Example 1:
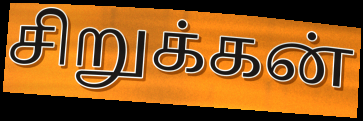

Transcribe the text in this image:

சிறுக்கன்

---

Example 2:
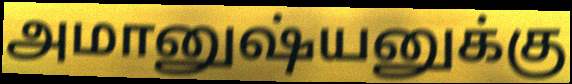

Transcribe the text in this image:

அமானுஷ்யனுக்கு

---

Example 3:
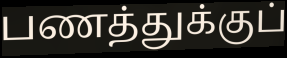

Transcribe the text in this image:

பணத்துக்குப்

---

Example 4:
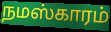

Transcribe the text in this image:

நமஸ்காரம்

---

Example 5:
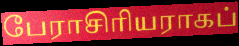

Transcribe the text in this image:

பேராசிரியராகப்